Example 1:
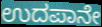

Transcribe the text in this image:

ಉದಪಾನೇ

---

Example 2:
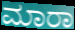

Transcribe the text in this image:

ಮಾರಾ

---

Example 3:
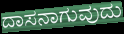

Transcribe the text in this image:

ದಾಸನಾಗುವುದು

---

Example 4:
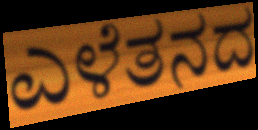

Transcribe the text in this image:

ಎಳೆತನದ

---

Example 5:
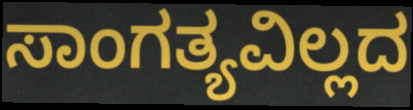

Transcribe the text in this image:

ಸಾಂಗತ್ಯವಿಲ್ಲದ